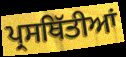
ਪ੍ਰਸਥਿੱਤੀਆਂ